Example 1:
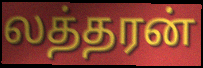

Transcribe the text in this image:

லத்தரன்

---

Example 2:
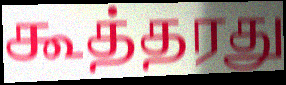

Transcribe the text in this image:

கூத்தரது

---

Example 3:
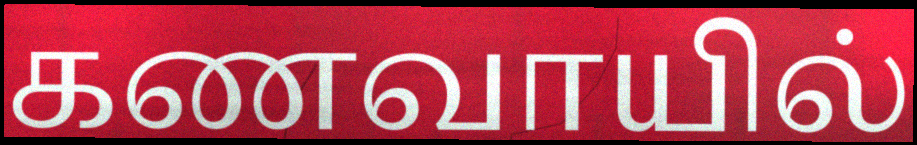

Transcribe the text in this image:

கணவாயில்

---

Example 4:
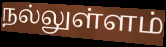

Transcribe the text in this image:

நல்லுள்ளம்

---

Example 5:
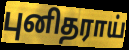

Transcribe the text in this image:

புனிதராய்